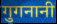
गुगनानी